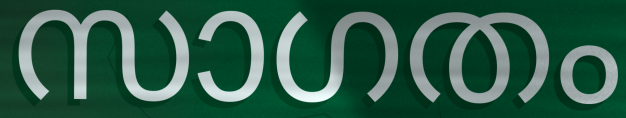
സാഗതം